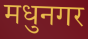
मधुनगर